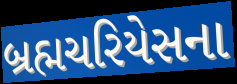
બ્રહ્મચરિયેસના